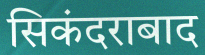
सिकंदराबाद